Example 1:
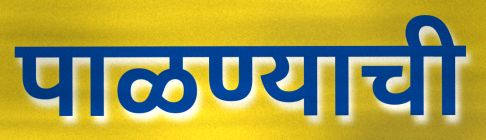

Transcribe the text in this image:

पाळण्याची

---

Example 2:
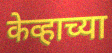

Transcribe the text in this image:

केव्हाच्या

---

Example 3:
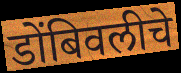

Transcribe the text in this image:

डोंबिवलीचे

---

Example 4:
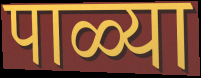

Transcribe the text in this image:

पाळ्या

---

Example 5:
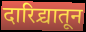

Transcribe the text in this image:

दारिद्र्यातून